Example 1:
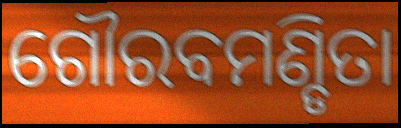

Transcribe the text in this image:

ଗୌରବମଣ୍ଡିତା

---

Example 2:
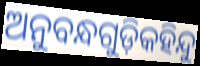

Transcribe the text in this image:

ଅନୁବନ୍ଧଗୁଡ଼ିକହିନ୍ଦୁ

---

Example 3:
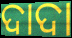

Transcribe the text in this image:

ଦାଦା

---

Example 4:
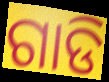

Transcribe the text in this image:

ଗାଡି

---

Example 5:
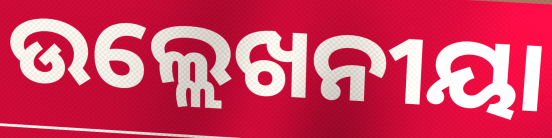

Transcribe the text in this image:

ଉଲ୍ଲେଖନୀୟା